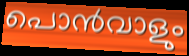
പൊൻവാളും